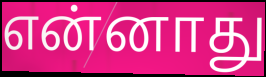
என்னாது